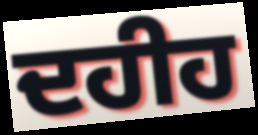
ਦਹੀਹ